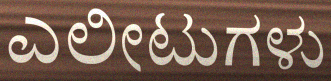
ಎಲೀಟುಗಳು